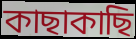
কাছাকাছি